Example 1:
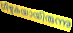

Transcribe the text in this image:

വീഴുകയായിരുന്നു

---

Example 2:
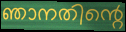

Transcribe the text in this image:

ഞാനതിന്റെ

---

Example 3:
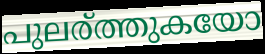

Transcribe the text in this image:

പുലര്ത്തുകയോ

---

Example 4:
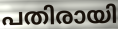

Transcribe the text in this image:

പതിരായി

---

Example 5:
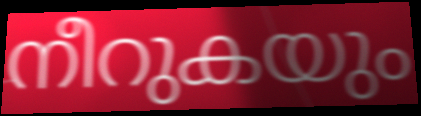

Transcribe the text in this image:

നീറുകയും